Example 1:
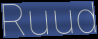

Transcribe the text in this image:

Ruud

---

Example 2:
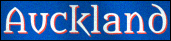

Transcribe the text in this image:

Auckland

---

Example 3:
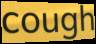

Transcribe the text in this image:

cough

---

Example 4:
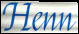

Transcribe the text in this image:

Henn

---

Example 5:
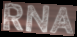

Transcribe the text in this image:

RNA